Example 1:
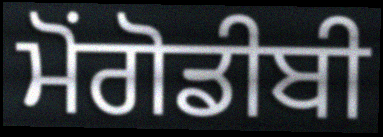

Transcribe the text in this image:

ਮੋਂਗੋਡੀਬੀ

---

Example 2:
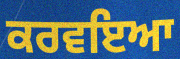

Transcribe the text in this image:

ਕਰਵਇਆ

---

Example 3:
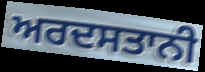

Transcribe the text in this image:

ਅਰਦਸਤਾਨੀ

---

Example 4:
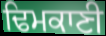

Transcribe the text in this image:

ਢਿਮਕਾਣੀ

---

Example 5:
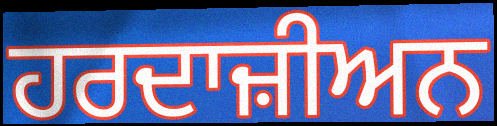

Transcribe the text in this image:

ਹਰਦਾਜ਼ੀਅਨ